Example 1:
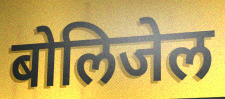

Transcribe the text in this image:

बोलिजेल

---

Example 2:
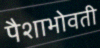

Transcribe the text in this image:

पैशाभोवती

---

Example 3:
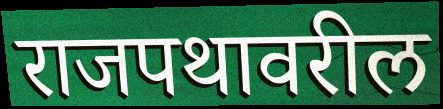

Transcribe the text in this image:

राजपथावरील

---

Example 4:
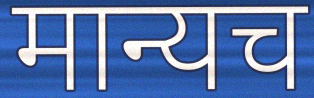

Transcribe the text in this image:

मान्यच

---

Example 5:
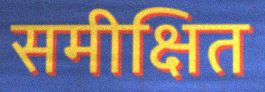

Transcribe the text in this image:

समीक्षित